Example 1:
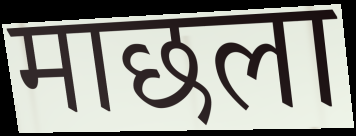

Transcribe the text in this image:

माछला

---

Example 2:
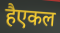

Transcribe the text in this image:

हैएकल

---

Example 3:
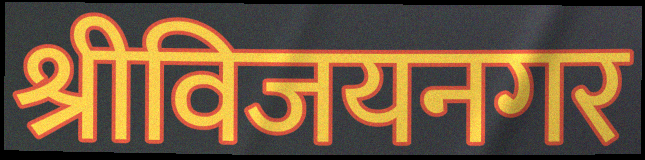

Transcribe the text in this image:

श्रीविजयनगर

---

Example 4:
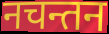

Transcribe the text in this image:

नचन्तन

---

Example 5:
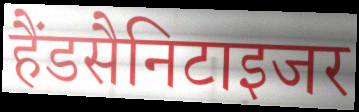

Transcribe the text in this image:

हैंडसैनिटाइजर